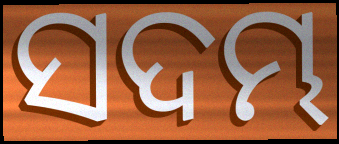
ସଦମ୍ଭ